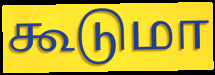
கூடுமா